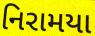
નિરામયા